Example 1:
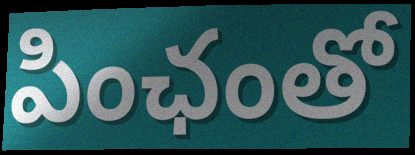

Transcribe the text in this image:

పింఛంతో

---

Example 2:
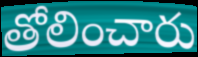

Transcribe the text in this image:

తోలించారు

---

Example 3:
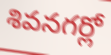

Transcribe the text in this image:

శివనగర్లో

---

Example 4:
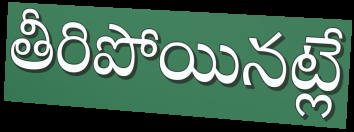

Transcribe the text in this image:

తీరిపోయినట్లే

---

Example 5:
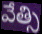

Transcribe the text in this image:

వేత్సి